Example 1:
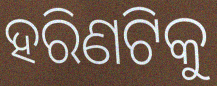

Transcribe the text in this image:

ହରିଣଟିକୁ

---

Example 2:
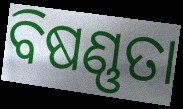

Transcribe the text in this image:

ବିଷଣ୍ଣତା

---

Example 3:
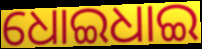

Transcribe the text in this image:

ଧୋଇଧାଇ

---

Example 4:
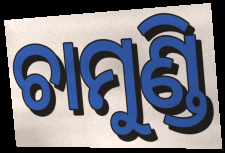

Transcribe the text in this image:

ଚାମୁଣ୍ଡି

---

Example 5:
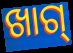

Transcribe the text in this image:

ଖାଗ୍